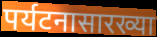
पर्यटनासारख्या